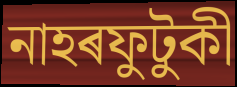
নাহৰফুটুকী